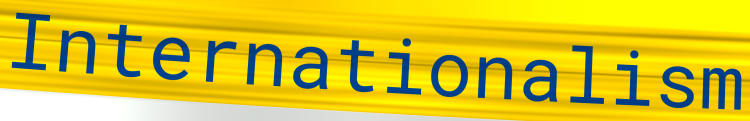
Internationalism